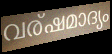
വര്ഷമാദ്യം